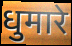
धुमारे